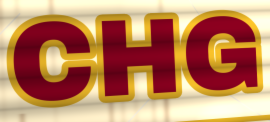
CHG